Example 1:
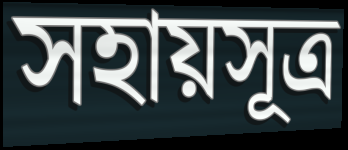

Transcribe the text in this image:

সহায়সূত্র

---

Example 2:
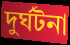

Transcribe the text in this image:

দুর্ঘটনা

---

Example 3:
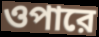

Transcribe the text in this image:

ওপারে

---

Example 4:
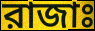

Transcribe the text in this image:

রাজাঃ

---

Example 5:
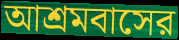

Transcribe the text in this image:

আশ্রমবাসের